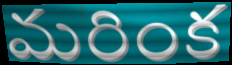
మరింక